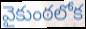
వైకుంఠలోక